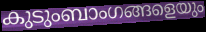
കുടുംബാംഗങ്ങളെയും